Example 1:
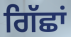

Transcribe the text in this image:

ਗਿੱਛਾਂ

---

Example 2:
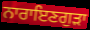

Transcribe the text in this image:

ਨਾਰਾਇਣਗੁੜਾ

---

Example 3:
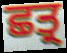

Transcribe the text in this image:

ਛਤ੍ਰ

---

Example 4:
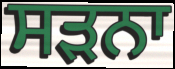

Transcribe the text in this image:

ਸੜਨਾ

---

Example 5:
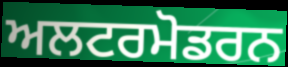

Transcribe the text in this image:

ਅਲਟਰਮੋਡਰਨ